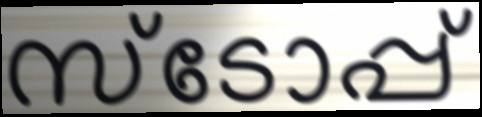
സ്ടോപ്പ്